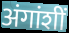
अंगांशीं